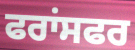
ਫਰਾਂਸਫਰ